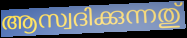
ആസ്വദിക്കുന്നതു്